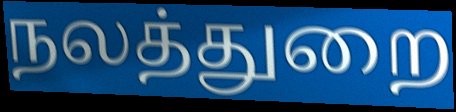
நலத்துறை